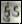
કુંડ